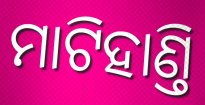
ମାଟିହାଣ୍ତି